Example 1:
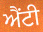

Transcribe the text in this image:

ਐਂਟੀ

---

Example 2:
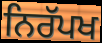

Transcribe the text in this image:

ਨਿਰੱਪਖ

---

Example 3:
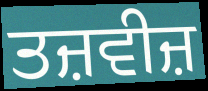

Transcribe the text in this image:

ਤਜ਼ਵੀਜ਼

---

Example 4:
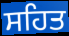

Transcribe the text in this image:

ਸਹਿਤ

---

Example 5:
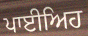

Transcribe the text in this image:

ਪਾਈਅਿਹ